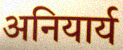
अनियार्य